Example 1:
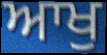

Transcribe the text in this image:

ਆਖੁ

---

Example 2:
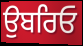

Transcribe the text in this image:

ਉਬਰਿਓ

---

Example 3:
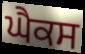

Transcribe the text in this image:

ਘੈਕਸ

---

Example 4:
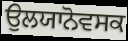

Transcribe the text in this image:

ਉਲਯਾਨੋਵਸਕ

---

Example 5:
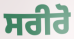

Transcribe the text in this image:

ਸਰੀਰੋ